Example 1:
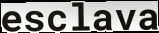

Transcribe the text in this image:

esclava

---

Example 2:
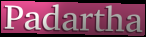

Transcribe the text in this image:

Padartha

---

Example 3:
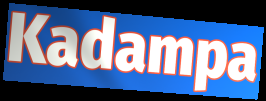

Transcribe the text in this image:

Kadampa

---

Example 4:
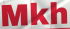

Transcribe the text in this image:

Mkh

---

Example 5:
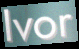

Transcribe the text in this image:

Ivor